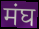
मंघ